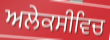
ਅਲੇਕਸੀਵਿਚ